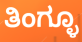
ತಿಂಗ್ಳೂ